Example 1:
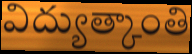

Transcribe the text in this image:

విద్యుత్కాంతి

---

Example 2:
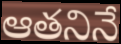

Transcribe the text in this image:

ఆతనినే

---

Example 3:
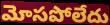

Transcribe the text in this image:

మోసపోలేదు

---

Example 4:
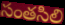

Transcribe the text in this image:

సంతసిలి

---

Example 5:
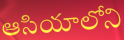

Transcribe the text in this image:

ఆసియాలోని